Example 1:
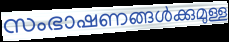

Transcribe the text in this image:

സംഭാഷണങ്ങൾക്കുമുള്ള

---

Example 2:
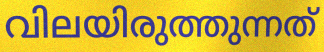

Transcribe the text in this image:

വിലയിരുത്തുന്നത്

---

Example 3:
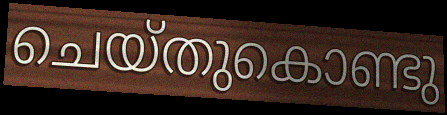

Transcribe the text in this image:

ചെയ്തുകൊണ്ടു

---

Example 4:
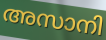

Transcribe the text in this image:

അസാനി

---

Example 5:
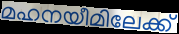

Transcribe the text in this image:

മഹനയീമിലേക്ക്